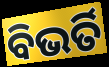
ବିଭର୍ତି